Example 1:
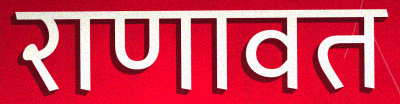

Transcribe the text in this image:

राणावत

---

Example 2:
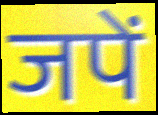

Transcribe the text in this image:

जपें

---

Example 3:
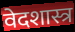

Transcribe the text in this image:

वेदशास्त्र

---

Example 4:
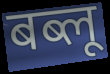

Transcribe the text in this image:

बब्लू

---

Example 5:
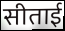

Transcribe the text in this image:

सीताई